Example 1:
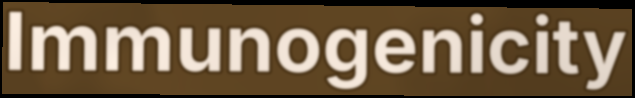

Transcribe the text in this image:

Immunogenicity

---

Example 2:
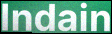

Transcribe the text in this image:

Indain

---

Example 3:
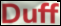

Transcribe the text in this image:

Duff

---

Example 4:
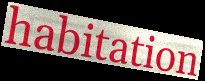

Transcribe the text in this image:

habitation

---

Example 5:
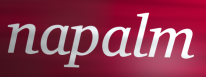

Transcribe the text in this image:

napalm